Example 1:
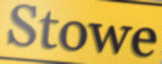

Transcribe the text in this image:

Stowe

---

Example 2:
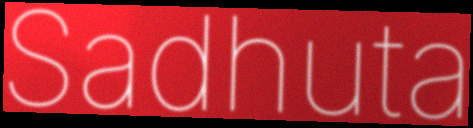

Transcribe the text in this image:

Sadhuta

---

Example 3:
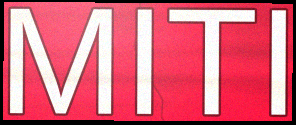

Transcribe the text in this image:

MITI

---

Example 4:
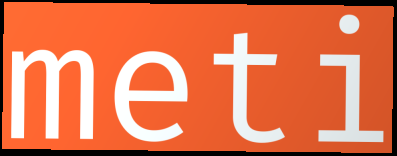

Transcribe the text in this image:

meti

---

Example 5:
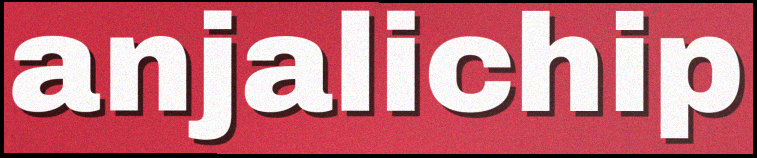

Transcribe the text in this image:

anjalichip